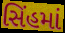
સિંહમાં